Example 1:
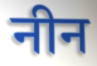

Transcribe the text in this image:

नीन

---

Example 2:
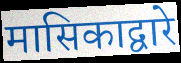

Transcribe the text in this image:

मासिकाद्वारे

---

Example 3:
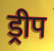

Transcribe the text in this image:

ड्रीप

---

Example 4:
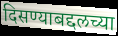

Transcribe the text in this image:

दिसण्याबद्दलच्या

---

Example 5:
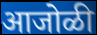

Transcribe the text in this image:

आजोळी